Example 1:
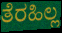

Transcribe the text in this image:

ತೆರಹಿಲ್ಲ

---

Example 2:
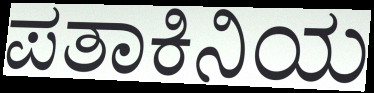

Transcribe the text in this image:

ಪತಾಕಿನಿಯ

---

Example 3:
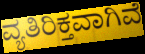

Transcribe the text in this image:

ವ್ಯತಿರಿಕ್ತವಾಗಿವೆ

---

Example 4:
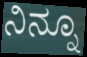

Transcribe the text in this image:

ನಿನ್ನೂ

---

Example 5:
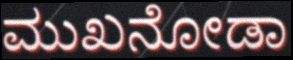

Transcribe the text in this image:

ಮುಖನೋಡಾ